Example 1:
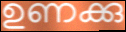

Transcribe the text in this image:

ഉണക്കു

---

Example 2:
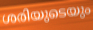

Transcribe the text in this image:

ശരിയുടെയും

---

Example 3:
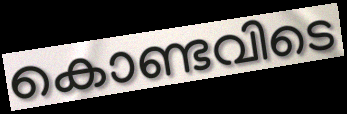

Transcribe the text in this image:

കൊണ്ടവിടെ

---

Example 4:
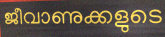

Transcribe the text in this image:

ജീവാണുക്കളുടെ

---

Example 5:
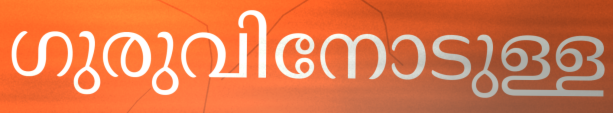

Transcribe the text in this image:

ഗുരുവിനോടുള്ള